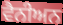
ਵੈਨੀਅਨ